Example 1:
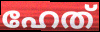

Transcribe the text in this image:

ഹേത്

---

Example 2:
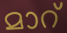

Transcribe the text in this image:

മാറ്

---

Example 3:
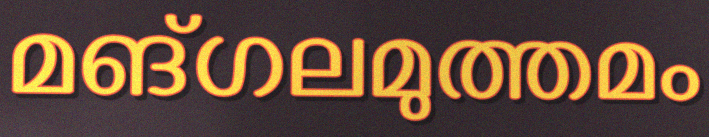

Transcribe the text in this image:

മങ്ഗലമുത്തമം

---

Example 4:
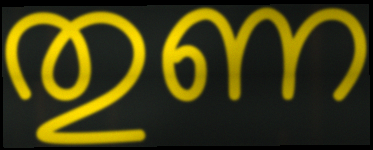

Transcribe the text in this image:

തുണ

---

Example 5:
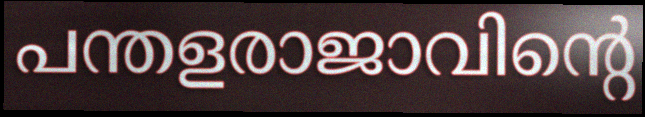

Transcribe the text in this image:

പന്തളരാജാവിന്റെ